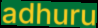
adhuru